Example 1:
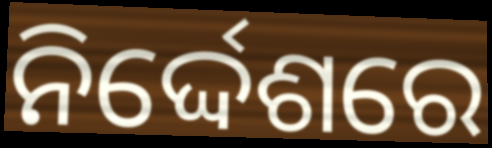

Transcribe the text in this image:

ନିର୍ଦ୍ଦେଶରେ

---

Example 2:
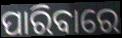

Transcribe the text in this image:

ପାରିବାରେ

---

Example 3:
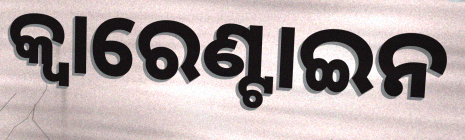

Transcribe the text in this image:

କ୍ୱାରେଣ୍ଟାଇନ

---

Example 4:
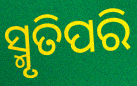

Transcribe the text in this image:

ସ୍ମୃତିପରି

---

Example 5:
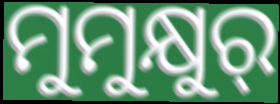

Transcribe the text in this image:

ମୁମୁକ୍ଷୁର୍